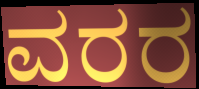
ವರರ